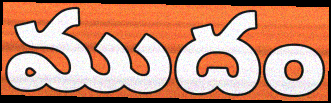
ముదం